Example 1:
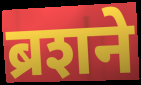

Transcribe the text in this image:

ब्रशने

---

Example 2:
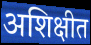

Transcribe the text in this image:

अशिक्षीत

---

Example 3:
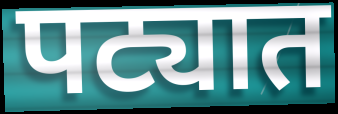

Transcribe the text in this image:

पट्यात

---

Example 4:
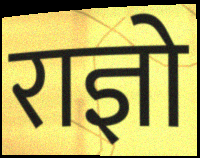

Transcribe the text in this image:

राज्ञो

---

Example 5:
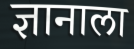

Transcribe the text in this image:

ज्ञानाला